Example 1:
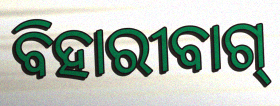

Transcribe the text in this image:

ବିହାରୀବାଗ୍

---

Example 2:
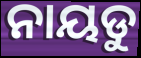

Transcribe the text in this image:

ନାୟଡୁ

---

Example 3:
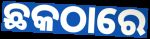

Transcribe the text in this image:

ଛକଠାରେ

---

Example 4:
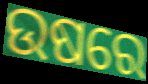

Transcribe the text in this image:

ଉଷରେ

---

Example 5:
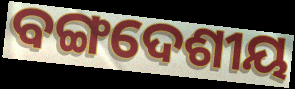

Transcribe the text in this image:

ବଙ୍ଗଦେଶୀୟ